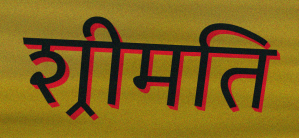
श्रीमति